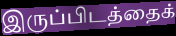
இருப்பிடத்தைக்